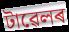
টাৱেলৰ